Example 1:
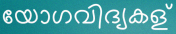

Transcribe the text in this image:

യോഗവിദ്യകള്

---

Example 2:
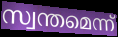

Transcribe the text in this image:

സ്വന്തമെന്ന്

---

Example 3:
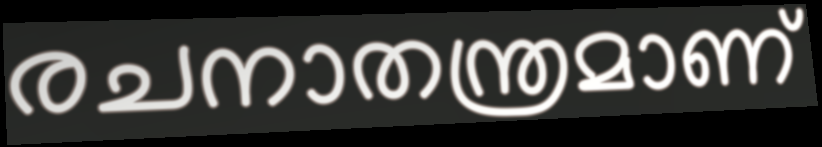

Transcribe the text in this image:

രചനാതന്ത്രമാണ്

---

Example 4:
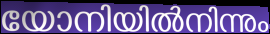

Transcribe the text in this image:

യോനിയിൽനിന്നും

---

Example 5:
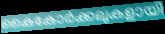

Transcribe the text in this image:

കൈകോർക്കലുകളായി